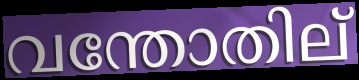
വന്തോതില്